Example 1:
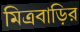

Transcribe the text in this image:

মিত্রবাড়ির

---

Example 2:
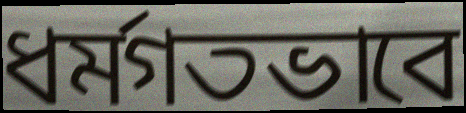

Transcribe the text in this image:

ধর্মগতভাবে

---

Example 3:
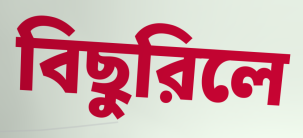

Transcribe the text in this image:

বিছুরিলে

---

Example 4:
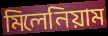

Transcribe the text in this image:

মিলেনিয়াম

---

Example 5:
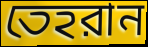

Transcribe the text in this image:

তেহরান